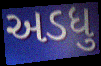
અડધુ